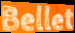
Bellet